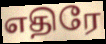
எதிரே